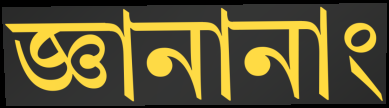
জ্ঞানানাং